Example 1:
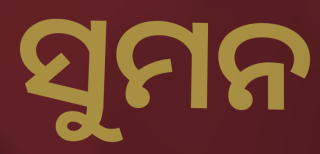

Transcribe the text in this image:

ସୁମନ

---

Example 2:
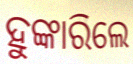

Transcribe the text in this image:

ହୁଙ୍କାରିଲେ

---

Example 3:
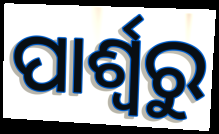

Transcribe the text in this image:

ପାର୍ଶ୍ଵରୁ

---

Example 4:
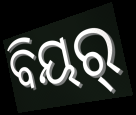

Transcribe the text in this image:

ବିୟର୍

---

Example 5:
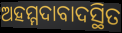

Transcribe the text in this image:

ଅହମ୍ମଦାବାଦସ୍ଥିତ